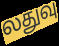
லதுவு